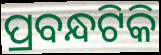
ପ୍ରବନ୍ଧଟିକି